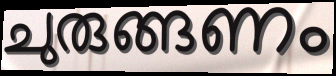
ചുരുങ്ങണം